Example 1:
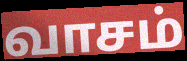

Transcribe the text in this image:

வாசம்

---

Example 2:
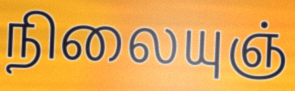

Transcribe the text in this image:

நிலையுஞ்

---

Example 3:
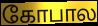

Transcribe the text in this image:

கோபால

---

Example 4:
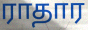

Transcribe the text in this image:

ராதார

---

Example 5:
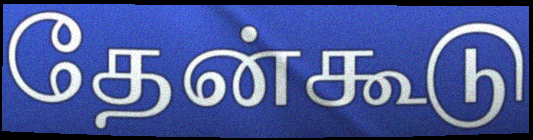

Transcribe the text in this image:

தேன்கூடு